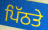
ਪਿੱਠਤੇ